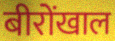
बीरोंखाल